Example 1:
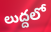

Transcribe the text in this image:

లుద్దలో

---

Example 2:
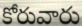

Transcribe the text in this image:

కోరువారు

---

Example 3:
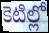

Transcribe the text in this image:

కెటిల్లో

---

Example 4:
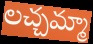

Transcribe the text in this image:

లచ్చమ్మా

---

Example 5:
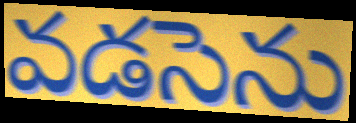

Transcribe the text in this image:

వడసెను